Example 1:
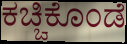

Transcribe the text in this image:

ಕಚ್ಚಿಕೊಂಡೆ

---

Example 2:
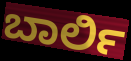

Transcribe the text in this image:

ಬಾರ್ಲಿ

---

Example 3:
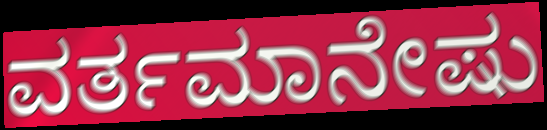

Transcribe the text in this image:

ವರ್ತಮಾನೇಷು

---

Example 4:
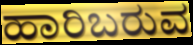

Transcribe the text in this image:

ಹಾರಿಬರುವ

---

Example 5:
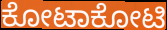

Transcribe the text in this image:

ಕೋಟಾಕೋಟಿ